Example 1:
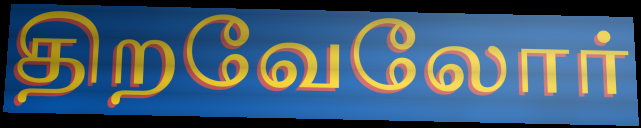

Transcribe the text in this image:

திறவேலோர்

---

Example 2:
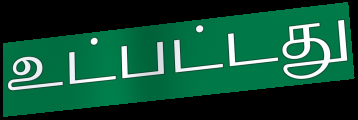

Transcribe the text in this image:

உட்பட்டது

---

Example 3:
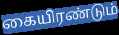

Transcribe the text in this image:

கையிரண்டும்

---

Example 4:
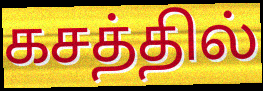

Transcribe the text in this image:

கசத்தில்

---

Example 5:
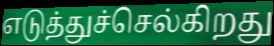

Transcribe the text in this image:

எடுத்துச்செல்கிறது